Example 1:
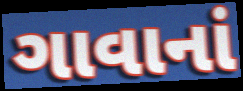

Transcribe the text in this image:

ગાવાનાં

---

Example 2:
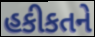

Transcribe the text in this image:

હકીકતને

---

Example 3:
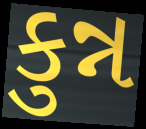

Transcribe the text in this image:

કુન્ન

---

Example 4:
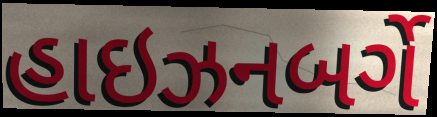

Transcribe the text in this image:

હાઇઝનબર્ગે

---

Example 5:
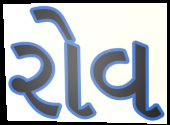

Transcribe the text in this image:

રોવ